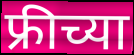
फ्रीच्या